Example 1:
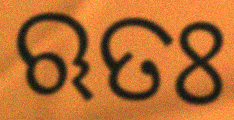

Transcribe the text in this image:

ଋତଃ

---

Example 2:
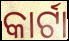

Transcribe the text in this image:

କାର୍ଟା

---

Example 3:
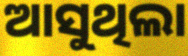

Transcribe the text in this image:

ଆସୁଥିଲା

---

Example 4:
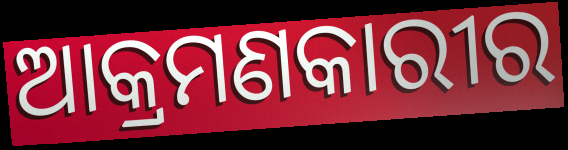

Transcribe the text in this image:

ଆକ୍ରମଣକାରୀର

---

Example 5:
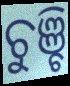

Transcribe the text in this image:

ଚୁଞ୍ଚି